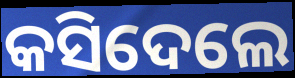
କସିଦେଲେ